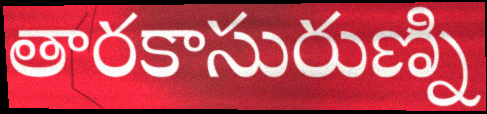
తారకాసురుణ్ని